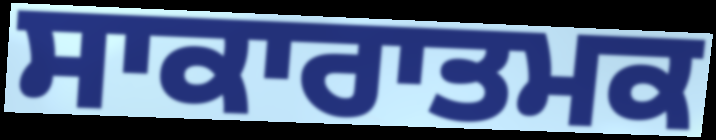
ਸਾਕਾਰਾਤਮਕ